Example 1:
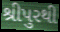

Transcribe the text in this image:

શ્રીપુરથી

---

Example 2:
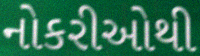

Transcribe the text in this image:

નોકરીઓથી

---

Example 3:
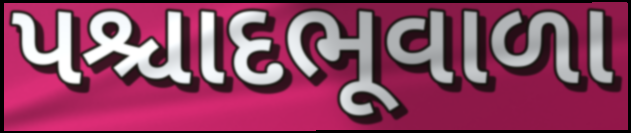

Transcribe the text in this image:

પશ્ચાદભૂવાળા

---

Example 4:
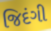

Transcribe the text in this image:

જિદંગી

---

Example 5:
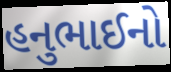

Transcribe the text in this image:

હનુભાઈનો